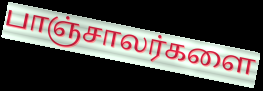
பாஞ்சாலர்களை